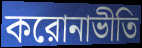
করোনাভীতি